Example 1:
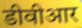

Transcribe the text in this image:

डीवीआर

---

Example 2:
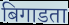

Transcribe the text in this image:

बिगाडता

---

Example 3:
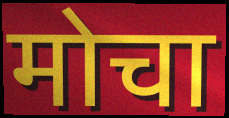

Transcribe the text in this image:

मोचा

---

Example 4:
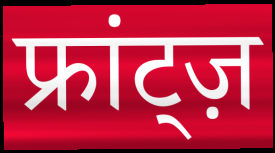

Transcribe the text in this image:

फ्रांट्ज़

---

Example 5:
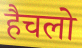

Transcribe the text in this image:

हैचलो